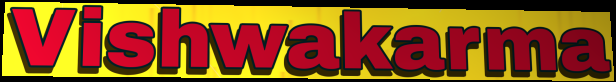
Vishwakarma